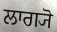
ਲਾਗ੍ਯੋ